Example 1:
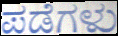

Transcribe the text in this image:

ಪಡೆಗಳು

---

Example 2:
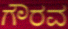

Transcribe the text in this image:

ಗೌರವ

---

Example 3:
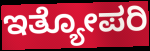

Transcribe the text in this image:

ಇತ್ಯೋಪರಿ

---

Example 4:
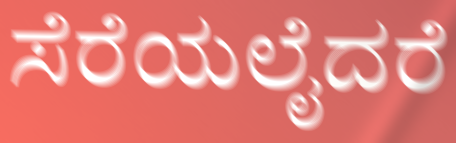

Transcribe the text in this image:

ಸೆರೆಯಲೈದರೆ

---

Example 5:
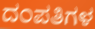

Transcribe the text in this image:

ದಂಪತಿಗಳ